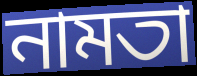
নামতা